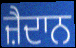
ਜ਼ੈਦਾਨ